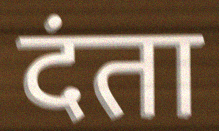
दंता